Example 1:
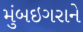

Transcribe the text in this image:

મુંબઇગરાને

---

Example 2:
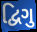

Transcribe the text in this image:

દ્વિગુ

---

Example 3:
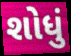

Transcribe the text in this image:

શોધું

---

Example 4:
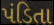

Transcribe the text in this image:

પંડિતા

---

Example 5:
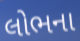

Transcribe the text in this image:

લોભના